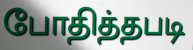
போதித்தபடி